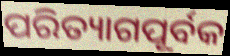
ପରିତ୍ୟାଗପୂର୍ବକ